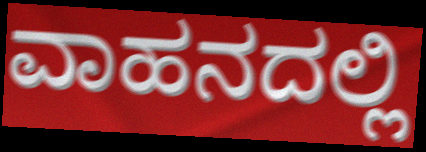
ವಾಹನದಲ್ಲಿ